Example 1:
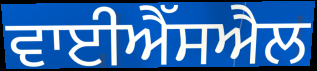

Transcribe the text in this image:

ਵਾਈਐੱਸਐਲ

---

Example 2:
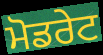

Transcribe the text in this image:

ਮੋਡਰੇਟ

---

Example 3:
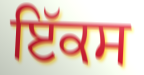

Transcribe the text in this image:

ਇੱਕਸ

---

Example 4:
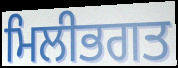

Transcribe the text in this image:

ਮਿਲੀਭਗਤ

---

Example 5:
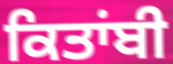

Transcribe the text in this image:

ਕਿਤਾਂਬੀ